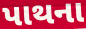
પાથના